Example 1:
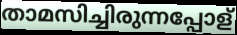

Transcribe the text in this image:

താമസിച്ചിരുന്നപ്പോള്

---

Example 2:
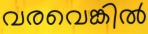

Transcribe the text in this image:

വരവെങ്കിൽ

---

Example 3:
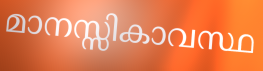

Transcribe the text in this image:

മാനസ്സികാവസ്ഥ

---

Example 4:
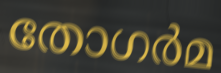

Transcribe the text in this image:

തോഗർമ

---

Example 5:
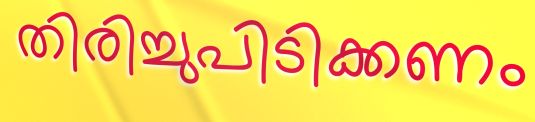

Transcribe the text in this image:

തിരിച്ചുപിടിക്കണം